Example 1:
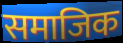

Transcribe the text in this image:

समाजिक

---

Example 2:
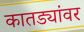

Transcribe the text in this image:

कातड्यांवर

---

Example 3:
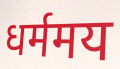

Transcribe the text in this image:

धर्ममय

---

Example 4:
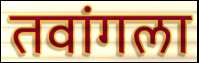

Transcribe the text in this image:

तवांगला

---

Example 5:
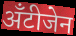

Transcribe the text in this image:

अँटीजेन